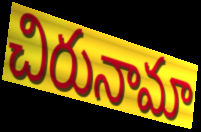
చిరునామా